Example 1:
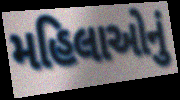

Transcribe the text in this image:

મહિલાઓનું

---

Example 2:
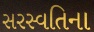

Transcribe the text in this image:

સરસ્વતિના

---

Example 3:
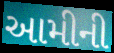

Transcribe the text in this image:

આમીની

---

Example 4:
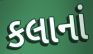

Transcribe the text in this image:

કલાનાં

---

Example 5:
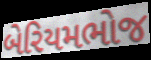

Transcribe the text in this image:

બેરિયમભોજ